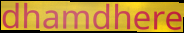
dhamdhere